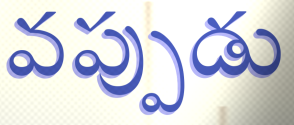
వప్పుడు